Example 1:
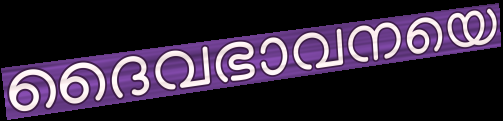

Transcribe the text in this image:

ദൈവഭാവനയെ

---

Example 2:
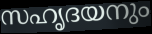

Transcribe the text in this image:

സഹൃദയനും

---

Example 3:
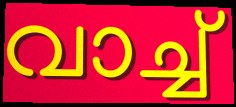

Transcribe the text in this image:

വാച്ച്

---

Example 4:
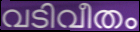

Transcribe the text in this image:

വടിവീതം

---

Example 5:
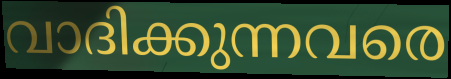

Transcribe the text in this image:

വാദിക്കുന്നവരെ